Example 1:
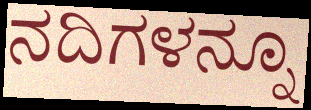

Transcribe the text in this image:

ನದಿಗಳನ್ನೂ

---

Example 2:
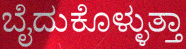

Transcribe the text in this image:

ಬೈದುಕೊಳ್ಳುತ್ತಾ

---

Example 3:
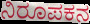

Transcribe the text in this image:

ನಿರೂಪಕನ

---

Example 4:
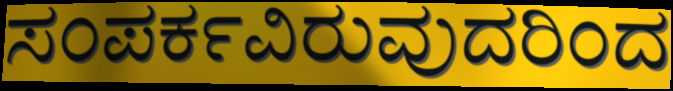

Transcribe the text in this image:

ಸಂಪರ್ಕವಿರುವುದರಿಂದ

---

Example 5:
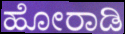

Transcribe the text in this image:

ಹೋರಾಡಿ